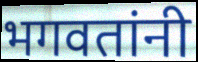
भगवतांनी